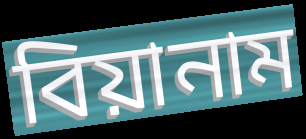
বিয়ানাম